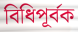
বিধিপূর্বক